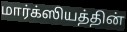
மார்க்ஸியத்தின்